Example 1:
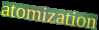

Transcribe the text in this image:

atomization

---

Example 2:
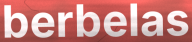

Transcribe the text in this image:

berbelas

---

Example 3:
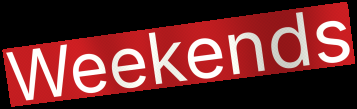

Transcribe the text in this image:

Weekends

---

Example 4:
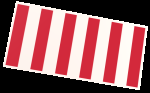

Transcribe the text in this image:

IIIIII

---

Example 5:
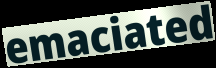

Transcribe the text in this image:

emaciated